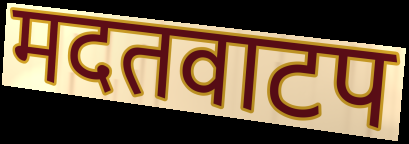
मदतवाटप